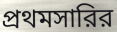
প্রথমসারির